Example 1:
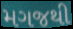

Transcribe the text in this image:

મગજથી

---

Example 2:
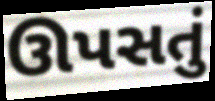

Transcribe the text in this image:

ઊપસતું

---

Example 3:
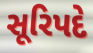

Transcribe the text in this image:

સૂરિપદે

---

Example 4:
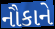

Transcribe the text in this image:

નૌકાને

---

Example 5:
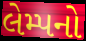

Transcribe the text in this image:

લેમ્પનો